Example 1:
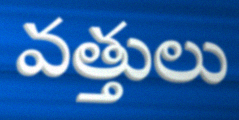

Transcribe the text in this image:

వత్తులు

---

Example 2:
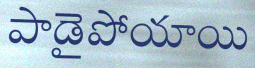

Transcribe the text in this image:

పాడైపోయాయి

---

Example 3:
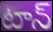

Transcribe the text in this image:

టాన్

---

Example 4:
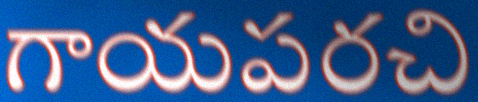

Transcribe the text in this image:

గాయపరచి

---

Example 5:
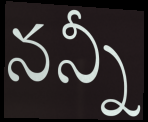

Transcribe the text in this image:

నన్నీ